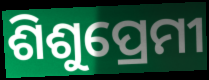
ଶିଶୁପ୍ରେମୀ